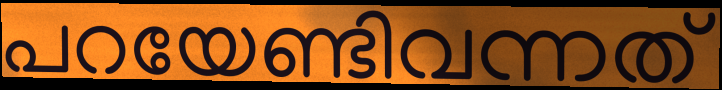
പറയേണ്ടിവന്നത്